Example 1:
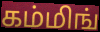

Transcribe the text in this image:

கம்மிங்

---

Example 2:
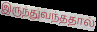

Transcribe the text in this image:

இருந்துவந்ததால்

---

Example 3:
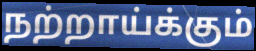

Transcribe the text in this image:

நற்றாய்க்கும்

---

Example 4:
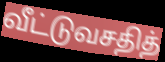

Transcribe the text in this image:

வீட்டுவசதித்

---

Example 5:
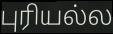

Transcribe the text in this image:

புரியல்ல